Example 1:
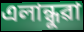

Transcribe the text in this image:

এলান্ধুৱা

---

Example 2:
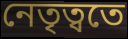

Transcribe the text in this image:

নেতৃত্বতে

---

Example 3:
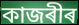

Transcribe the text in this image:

কাজৰীৰ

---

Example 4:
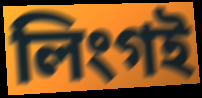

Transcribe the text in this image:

লিংগই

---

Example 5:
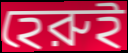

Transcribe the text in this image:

হেৰুই